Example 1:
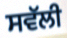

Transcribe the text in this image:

ਸਵੱਲੀ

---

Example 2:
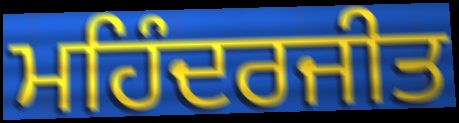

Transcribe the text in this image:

ਮਹਿੰਦਰਜੀਤ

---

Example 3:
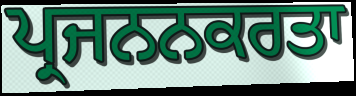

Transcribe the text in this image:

ਪ੍ਰਜਨਨਕਰਤਾ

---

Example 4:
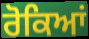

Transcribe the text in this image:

ਰੋਕਿਆਂ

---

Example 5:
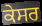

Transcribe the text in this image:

ਕੇਸਰ